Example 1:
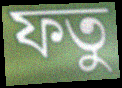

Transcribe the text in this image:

ফতু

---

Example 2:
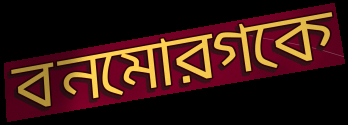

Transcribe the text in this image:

বনমোরগকে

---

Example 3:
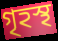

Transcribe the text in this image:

গৃহস্থ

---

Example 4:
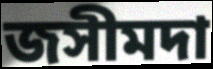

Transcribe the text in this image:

জসীমদা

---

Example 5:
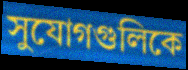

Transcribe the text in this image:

সুযোগগুলিকে